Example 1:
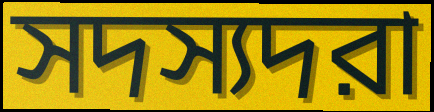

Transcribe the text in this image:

সদস্যদরা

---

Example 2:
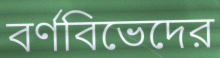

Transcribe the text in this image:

বর্ণবিভেদের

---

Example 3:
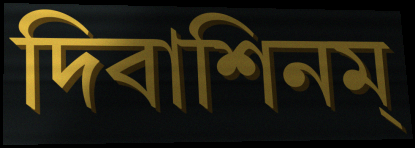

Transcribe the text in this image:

দিবাশিনম্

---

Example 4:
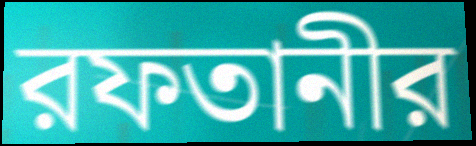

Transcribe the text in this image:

রফতানীর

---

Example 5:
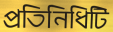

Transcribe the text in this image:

প্রতিনিধিটি